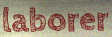
laborer